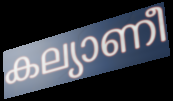
കല്യാണീ